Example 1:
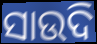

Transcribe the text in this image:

ସାଉଦି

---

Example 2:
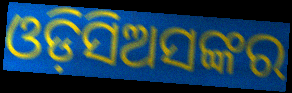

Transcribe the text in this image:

ଓଡ଼ିସିଅସଙ୍କର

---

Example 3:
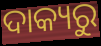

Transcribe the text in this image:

ଦାକ୍ୟରୁ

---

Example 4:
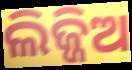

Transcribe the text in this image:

ଲିଜ୍ଜିଅ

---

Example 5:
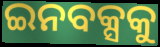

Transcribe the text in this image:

ଇନବକ୍ସକୁ